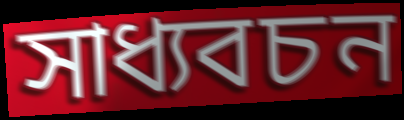
সাধ্যবচন